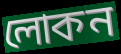
লোকন